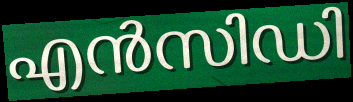
എൻസിഡി